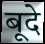
बूदे